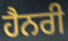
ਹੈਨਰੀ